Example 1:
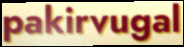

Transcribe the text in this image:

pakirvugal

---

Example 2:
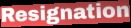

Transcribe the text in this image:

Resignation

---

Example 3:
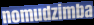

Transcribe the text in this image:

nomudzimba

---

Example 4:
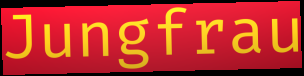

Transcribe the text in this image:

Jungfrau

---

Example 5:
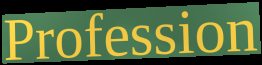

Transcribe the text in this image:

Profession